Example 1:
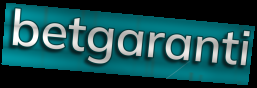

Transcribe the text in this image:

betgaranti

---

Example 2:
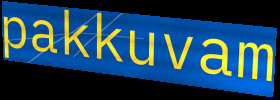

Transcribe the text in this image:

pakkuvam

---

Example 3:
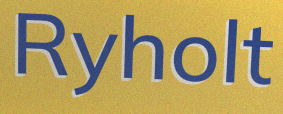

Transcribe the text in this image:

Ryholt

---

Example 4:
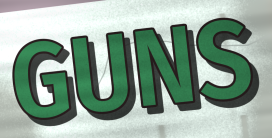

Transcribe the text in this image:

GUNS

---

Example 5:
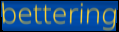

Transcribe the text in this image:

bettering